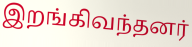
இறங்கிவந்தனர்